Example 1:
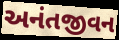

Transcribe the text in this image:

અનંતજીવન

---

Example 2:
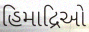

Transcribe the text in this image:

હિમાદ્રિઓ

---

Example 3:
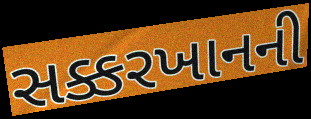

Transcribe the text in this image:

સક્કરખાનની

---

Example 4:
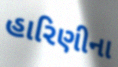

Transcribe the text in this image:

હારિણીના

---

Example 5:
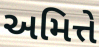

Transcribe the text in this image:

અમિત્તે